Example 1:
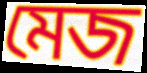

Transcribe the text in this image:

মেজ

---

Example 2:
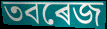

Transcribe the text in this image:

তবৰেজ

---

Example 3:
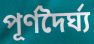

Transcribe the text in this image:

পূৰ্ণদৈৰ্ঘ্য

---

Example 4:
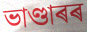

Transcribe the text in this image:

ভাণ্ডাৰৰ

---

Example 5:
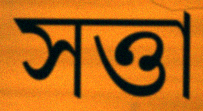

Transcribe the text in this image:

সত্তা